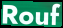
Rouf